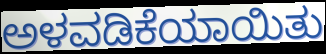
ಅಳವಡಿಕೆಯಾಯಿತು